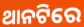
ଥାନଟିରେ